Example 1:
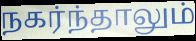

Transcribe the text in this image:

நகர்ந்தாலும்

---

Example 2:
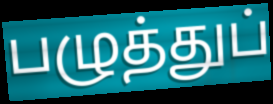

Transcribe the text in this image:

பழுத்துப்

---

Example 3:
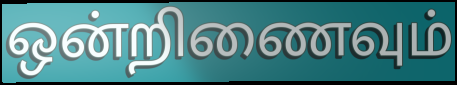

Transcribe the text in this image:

ஒன்றிணைவும்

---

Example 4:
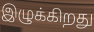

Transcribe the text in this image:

இழுக்கிறது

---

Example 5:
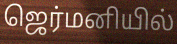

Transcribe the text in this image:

ஜெர்மனியில்